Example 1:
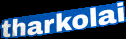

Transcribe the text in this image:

tharkolai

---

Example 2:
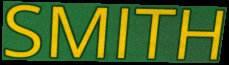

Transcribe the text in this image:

SMITH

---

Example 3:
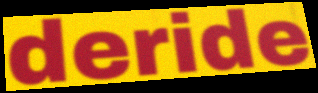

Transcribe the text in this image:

deride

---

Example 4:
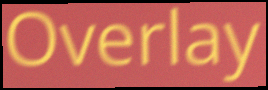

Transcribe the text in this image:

Overlay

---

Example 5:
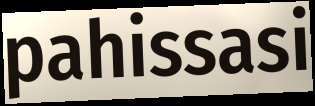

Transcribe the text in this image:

pahissasi